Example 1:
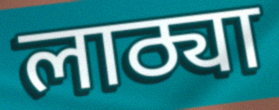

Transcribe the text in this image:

लाठ्या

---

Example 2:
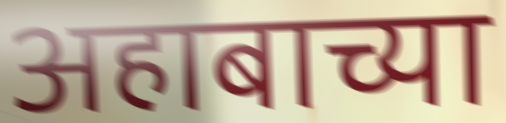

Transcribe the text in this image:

अहाबाच्या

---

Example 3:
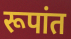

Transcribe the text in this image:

रूपांत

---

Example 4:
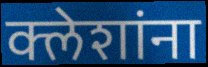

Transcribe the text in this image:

क्लेशांना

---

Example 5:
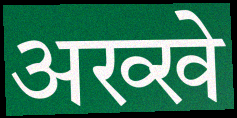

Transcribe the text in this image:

अख्खे